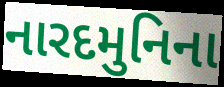
નારદમુનિના